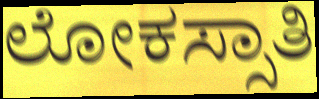
ಲೋಕಸ್ಸಾತಿ